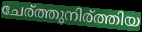
ചേര്ത്തുനിര്ത്തിയ